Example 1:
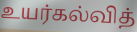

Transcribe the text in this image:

உயர்கல்வித்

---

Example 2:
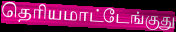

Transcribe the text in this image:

தெரியமாட்டேங்குது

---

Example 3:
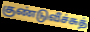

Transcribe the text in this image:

குண்டுவீச்சுத்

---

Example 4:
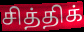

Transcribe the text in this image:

சித்திக்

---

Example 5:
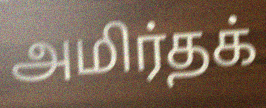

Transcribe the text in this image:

அமிர்தக்